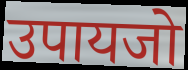
उपायजो